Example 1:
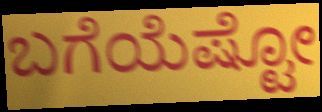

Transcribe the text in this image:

ಬಗೆಯೆಷ್ಟೋ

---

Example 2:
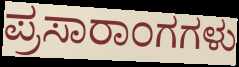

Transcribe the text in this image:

ಪ್ರಸಾರಾಂಗಗಳು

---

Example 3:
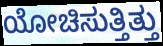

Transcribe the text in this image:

ಯೋಚಿಸುತ್ತಿತ್ತು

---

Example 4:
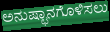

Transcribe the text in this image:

ಅನುಷ್ಟಾನಗೊಳಿಸಲು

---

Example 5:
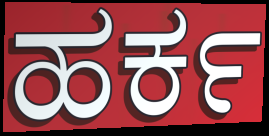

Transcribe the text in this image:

ಹರ್ಕ